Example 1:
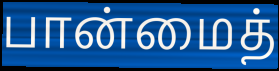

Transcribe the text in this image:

பான்மைத்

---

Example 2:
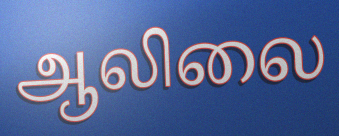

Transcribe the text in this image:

ஆலிலை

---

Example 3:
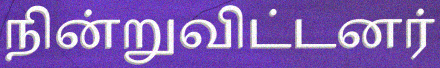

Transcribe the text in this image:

நின்றுவிட்டனர்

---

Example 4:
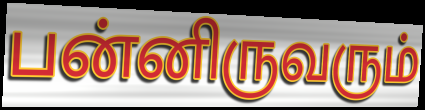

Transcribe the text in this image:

பன்னிருவரும்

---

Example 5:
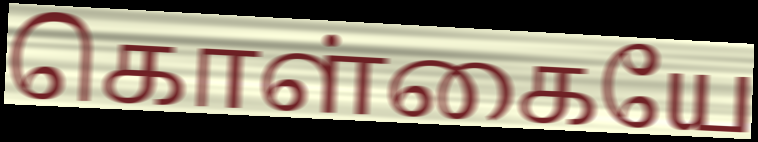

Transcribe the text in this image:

கொள்கையே